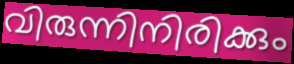
വിരുന്നിനിരിക്കും